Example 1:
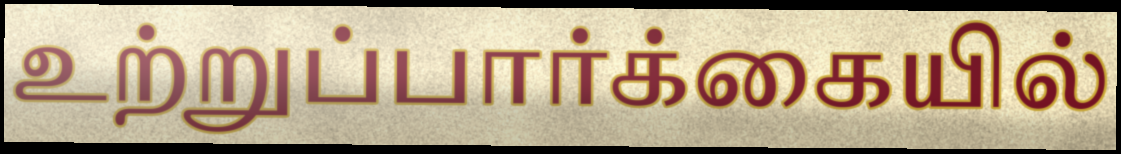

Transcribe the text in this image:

உற்றுப்பார்க்கையில்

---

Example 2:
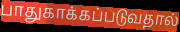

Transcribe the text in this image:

பாதுகாக்கப்படுவதால்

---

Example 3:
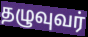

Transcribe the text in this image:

தழுவுவர்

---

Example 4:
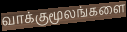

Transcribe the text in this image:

வாக்குமூலங்களை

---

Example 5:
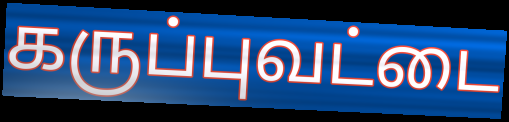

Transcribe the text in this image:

கருப்புவட்டை